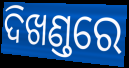
ଦିଖଣ୍ଡରେ